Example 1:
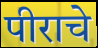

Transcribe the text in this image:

पीराचे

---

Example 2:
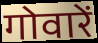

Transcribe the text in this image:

गोवारें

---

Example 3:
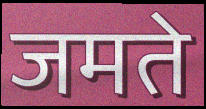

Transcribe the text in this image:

जमते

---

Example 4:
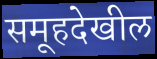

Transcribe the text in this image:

समूहदेखील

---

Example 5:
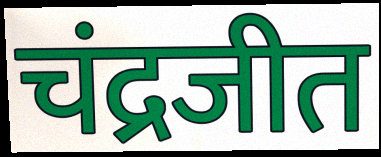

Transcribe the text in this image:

चंद्रजीत